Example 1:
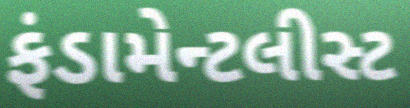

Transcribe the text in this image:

ફંડામેન્ટલીસ્ટ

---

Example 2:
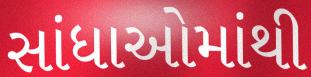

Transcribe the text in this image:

સાંધાઓમાંથી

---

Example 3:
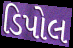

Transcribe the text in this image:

ડિપોલ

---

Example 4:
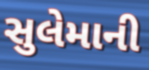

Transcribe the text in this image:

સુલેમાની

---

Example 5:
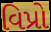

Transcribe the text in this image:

વિપ્રો